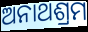
ଅନାଥଶ୍ରମ